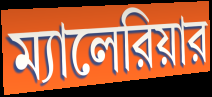
ম্যালেরিয়ার